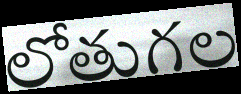
లోతుగల